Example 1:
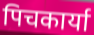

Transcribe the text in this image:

पिचकार्या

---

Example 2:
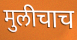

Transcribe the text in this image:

मुलीचाच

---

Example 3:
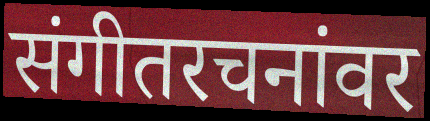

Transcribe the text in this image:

संगीतरचनांवर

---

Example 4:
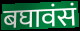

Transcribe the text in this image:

बघावंसं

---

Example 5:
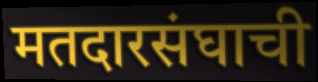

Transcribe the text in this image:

मतदारसंघाची